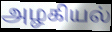
அழகியல்